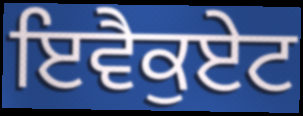
ਇਵੈਕੁਏਟ